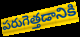
పరుగెత్తడానికి